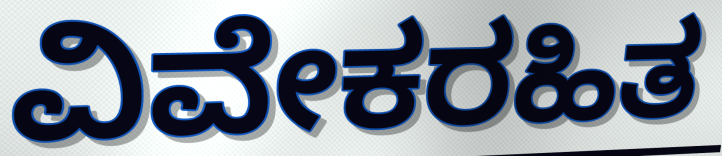
ವಿವೇಕರಹಿತ